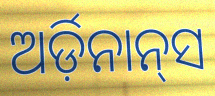
ଅର୍ଡ଼ିନାନ୍‌ସ